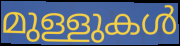
മുള്ളുകൾ